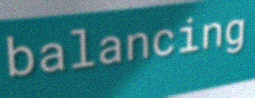
balancing